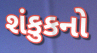
શંકુકનો